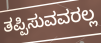
ತಪ್ಪಿಸುವವರಲ್ಲ